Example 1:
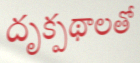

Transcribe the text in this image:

దృక్పథాలతో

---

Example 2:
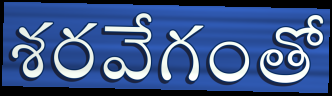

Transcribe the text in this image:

శరవేగంతో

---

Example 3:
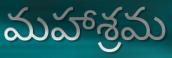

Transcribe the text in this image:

మహాశ్రమ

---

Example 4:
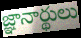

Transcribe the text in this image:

జ్ఞానార్థులు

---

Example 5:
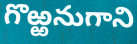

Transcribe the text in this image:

గొఱ్ఱనుగాని